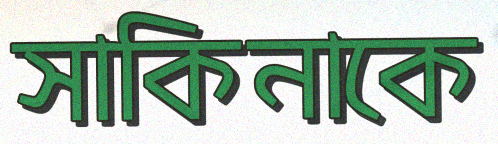
সাকিনাকে